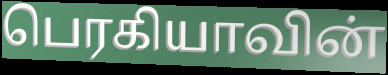
பெரகியாவின்